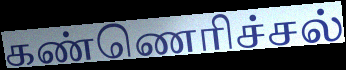
கண்ணெரிச்சல்